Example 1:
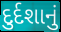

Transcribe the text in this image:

દુર્દશાનું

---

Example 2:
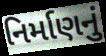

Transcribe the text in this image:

નિર્માણનું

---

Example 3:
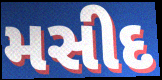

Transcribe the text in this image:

મસીદ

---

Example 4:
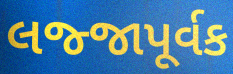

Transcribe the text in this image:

લજ્જાપૂર્વક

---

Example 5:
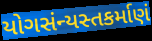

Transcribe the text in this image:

યોગસંન્યસ્તકર્માણં